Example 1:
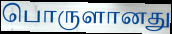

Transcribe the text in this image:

பொருளானது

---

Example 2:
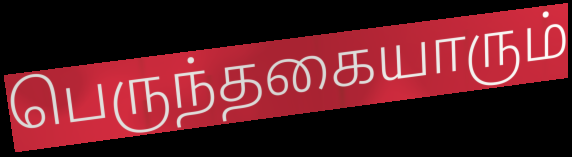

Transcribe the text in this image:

பெருந்தகையாரும்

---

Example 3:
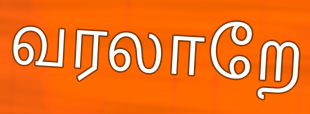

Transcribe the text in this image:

வரலாறே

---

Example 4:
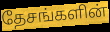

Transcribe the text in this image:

தேசங்களின்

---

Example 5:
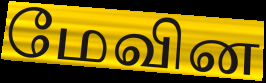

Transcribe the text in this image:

மேவின